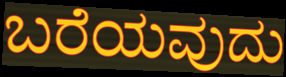
ಬರೆಯವುದು